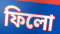
ফিলো